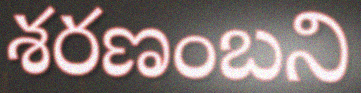
శరణంబని